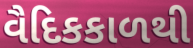
વૈદિકકાળથી